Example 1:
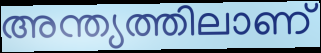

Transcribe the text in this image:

അന്ത്യത്തിലാണ്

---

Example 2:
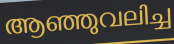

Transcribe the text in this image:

ആഞ്ഞുവലിച്ച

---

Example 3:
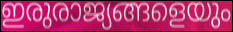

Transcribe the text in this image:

ഇരുരാജ്യങ്ങളെയും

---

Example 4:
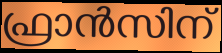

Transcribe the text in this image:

ഫ്രാൻസിന്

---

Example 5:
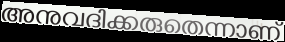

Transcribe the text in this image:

അനുവദിക്കരുതെന്നാണ്